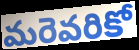
మరెవరికో